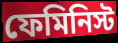
ফেমিনিস্ট